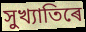
সুখ্যাতিৰে